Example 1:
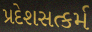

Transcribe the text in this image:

પ્રદેશસત્કર્મ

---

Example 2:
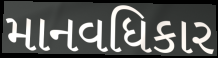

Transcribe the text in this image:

માનવધિકાર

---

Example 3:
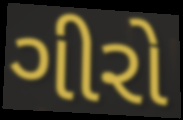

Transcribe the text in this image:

ગીરો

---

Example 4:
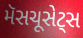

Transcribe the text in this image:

મૅસચૂસેટ્સ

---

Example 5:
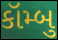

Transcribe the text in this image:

કૉમ્બુ